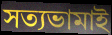
সত্যভামাই